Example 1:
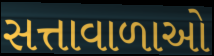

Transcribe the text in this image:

સત્તાવાળાઓ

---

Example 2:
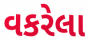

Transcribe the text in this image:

વકરેલા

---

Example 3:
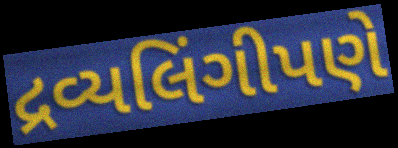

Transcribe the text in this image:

દ્રવ્યલિંગીપણે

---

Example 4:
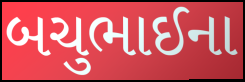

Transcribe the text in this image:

બચુભાઈના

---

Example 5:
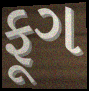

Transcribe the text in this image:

ફૂગ